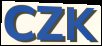
CZK